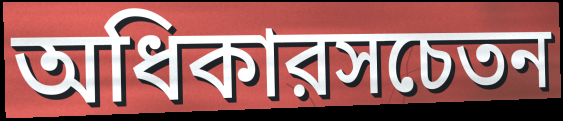
অধিকারসচেতন